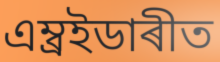
এম্ব্ৰইডাৰীত